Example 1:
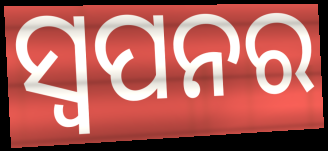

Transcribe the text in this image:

ସ୍ୱପନର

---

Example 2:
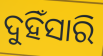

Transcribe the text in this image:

ଦୁହିଁସାରି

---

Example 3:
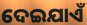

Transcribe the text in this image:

ଦେଇଯାଏଁ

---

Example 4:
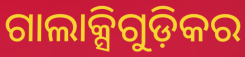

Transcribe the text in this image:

ଗାଲାକ୍ସିଗୁଡ଼ିକର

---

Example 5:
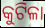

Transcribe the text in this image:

କୁଟିଳା